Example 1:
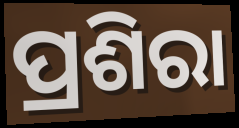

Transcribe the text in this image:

ପ୍ରଶିରା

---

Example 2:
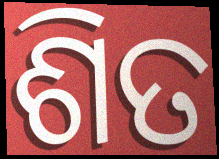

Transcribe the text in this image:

ଶିତ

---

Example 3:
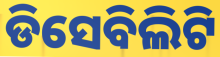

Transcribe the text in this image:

ଡିସେବିଲିଟି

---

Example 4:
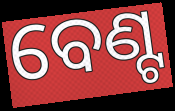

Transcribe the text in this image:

ବେଣ୍ଟ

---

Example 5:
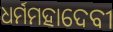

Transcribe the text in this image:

ଧର୍ମମହାଦେବୀ